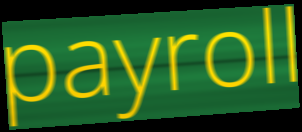
payroll